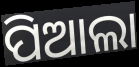
ପିଆଲା